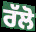
ਰੱਲੋ